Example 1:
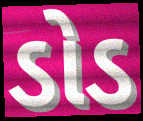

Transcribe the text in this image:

ડોડ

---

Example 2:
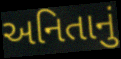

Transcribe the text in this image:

અનિતાનું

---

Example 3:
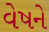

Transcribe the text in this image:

વેષને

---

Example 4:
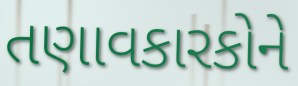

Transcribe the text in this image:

તણાવકારકોને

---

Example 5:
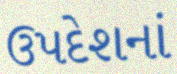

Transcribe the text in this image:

ઉપદેશનાં